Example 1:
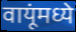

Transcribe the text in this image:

वायूंमध्ये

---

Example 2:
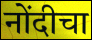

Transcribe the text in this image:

नोंदीचा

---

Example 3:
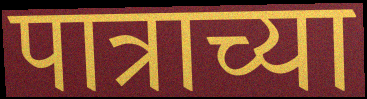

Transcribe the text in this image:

पात्राच्या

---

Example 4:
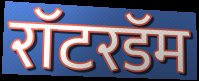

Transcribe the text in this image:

रॉटरडॅम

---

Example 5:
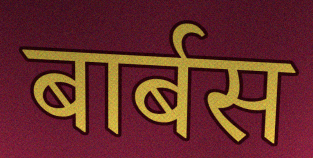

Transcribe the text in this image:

बार्बस